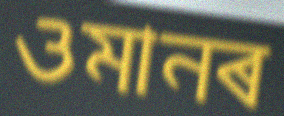
ওমানৰ